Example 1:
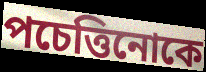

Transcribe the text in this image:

পচেত্তিনোকে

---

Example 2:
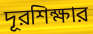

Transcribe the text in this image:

দূরশিক্ষার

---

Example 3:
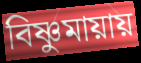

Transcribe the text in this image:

বিষ্ণুমায়ায়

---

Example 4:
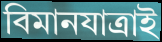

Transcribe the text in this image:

বিমানযাত্রাই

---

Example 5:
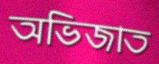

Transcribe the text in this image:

অভিজাত